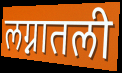
लग्नातली